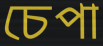
চেপা